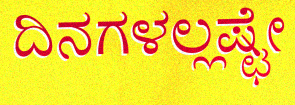
ದಿನಗಳಲ್ಲಷ್ಟೇ